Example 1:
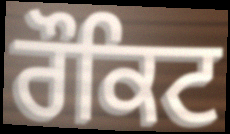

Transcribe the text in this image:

ਰੌਕਿਟ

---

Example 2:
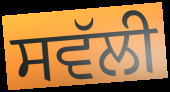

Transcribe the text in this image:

ਸਵੱਲੀ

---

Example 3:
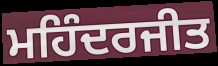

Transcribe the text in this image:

ਮਹਿੰਦਰਜੀਤ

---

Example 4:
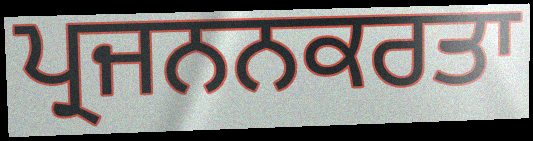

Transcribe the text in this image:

ਪ੍ਰਜਨਨਕਰਤਾ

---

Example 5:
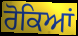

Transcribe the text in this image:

ਰੋਕਿਆਂ